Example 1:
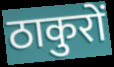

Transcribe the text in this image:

ठाकुरों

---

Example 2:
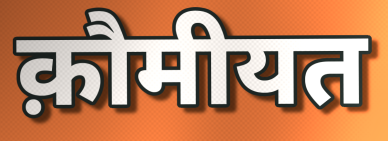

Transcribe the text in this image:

क़ौमीयत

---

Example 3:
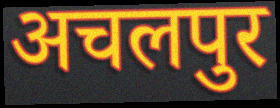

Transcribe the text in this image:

अचलपुर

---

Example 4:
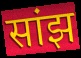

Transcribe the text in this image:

सांझ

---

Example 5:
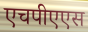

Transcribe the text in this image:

एचपीएएस